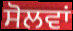
ਸੋਲਵਾਂ